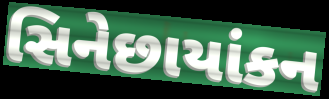
સિનેછાયાંકન